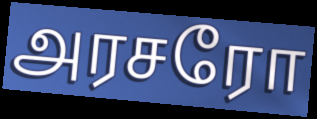
அரசரோ